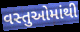
વસ્તુઓમાંથી